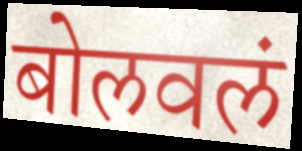
बोलवलं